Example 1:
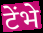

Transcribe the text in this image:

टेंभे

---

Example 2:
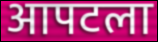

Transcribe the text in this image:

आपटला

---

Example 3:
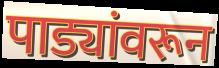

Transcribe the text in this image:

पाड्यांवरून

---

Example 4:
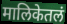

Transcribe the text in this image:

मालिकेतलं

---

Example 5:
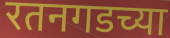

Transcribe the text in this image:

रतनगडच्या